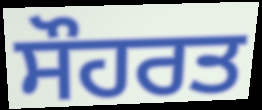
ਸੌਹਰਤ